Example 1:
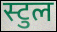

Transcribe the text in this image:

स्टुल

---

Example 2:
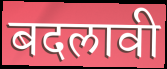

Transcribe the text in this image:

बदलावी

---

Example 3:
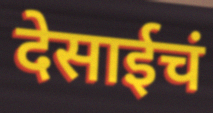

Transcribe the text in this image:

देसाईचं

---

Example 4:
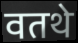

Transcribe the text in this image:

वतथे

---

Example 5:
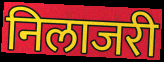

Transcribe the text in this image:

निलाजरी